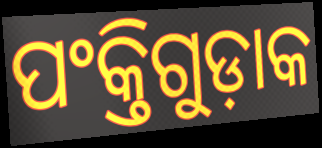
ପଂକ୍ତିଗୁଡ଼ାକ